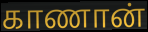
காணான்